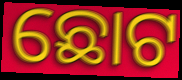
ଛୋଟ